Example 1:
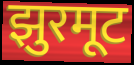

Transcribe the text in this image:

झुरमूट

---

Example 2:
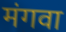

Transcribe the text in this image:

मंगवा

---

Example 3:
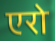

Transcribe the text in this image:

एरो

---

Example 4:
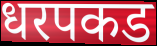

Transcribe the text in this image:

धरपकड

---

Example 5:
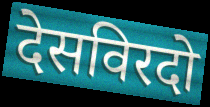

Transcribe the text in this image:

देसविरदो